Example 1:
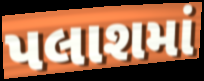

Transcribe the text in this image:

પલાશમાં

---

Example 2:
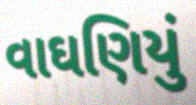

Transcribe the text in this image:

વાઘણિયું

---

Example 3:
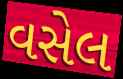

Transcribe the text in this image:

વસેલ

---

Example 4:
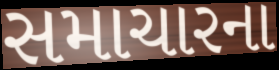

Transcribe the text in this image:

સમાચારના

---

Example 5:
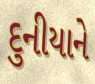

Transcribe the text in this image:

દુનીયાને